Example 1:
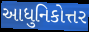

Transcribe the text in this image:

આધુનિકોત્તર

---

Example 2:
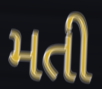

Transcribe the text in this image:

મતી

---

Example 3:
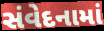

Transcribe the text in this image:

સંવેદનામાં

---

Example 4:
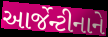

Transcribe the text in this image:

આર્જેન્ટીનાને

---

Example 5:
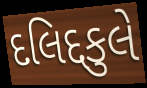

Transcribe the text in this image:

દલિદ્દકુલે